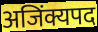
अजिंक्यपद